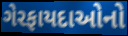
ગેરફાયદાઓનો